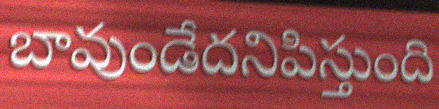
బావుండేదనిపిస్తుంది